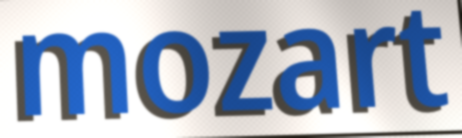
mozart